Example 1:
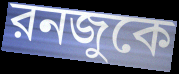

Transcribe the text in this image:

রনজুকে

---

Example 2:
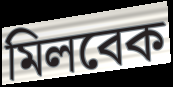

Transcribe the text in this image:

মিলবেক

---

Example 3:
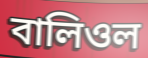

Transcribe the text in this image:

বালিওল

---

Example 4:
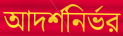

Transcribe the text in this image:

আদর্শনির্ভর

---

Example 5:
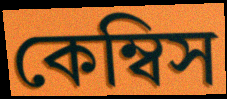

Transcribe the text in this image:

কেম্বিস